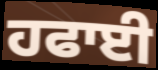
ਹਫਾਈ